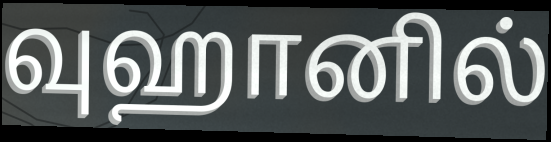
வுஹானில்